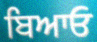
ਬਿਆਓ